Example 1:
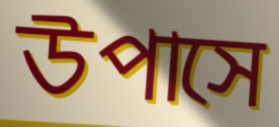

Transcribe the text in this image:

উপাসে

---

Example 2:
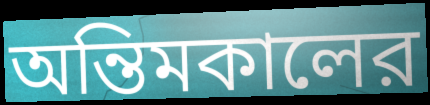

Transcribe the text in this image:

অন্তিমকালের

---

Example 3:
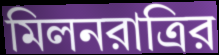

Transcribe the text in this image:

মিলনরাত্রির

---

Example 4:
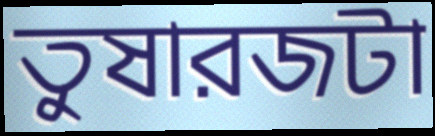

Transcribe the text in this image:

তুষারজটা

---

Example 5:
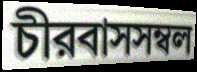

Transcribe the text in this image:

চীরবাসসম্বল